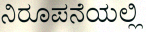
ನಿರೂಪನೆಯಲ್ಲಿ